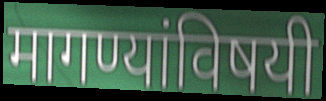
मागण्यांविषयी